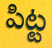
పిట్ట